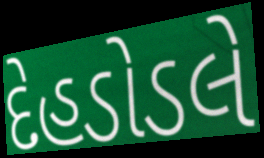
દેહડોડલે